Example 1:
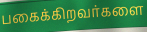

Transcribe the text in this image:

பகைக்கிறவர்களை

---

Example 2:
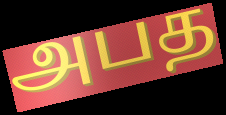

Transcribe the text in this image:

அபத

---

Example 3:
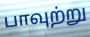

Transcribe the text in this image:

பாவுற்று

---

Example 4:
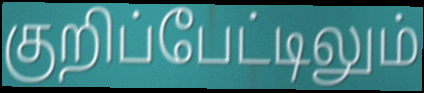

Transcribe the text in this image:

குறிப்பேட்டிலும்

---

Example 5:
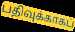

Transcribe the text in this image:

பதிவுக்காகப்